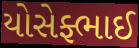
યોસેફ્ભાઈ